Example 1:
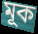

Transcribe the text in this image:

মূক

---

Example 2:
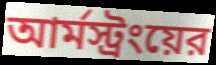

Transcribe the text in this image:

আর্মস্ট্রংয়ের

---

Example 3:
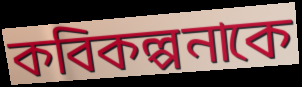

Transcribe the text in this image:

কবিকল্পনাকে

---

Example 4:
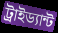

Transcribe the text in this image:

ট্রাইড্যান্ট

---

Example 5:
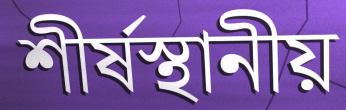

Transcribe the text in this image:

শীর্ষস্থানীয়